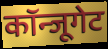
कॉन्जूगेट